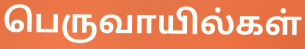
பெருவாயில்கள்